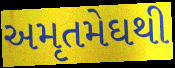
અમૃતમેઘથી